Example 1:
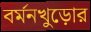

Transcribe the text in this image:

বর্মনখুড়োর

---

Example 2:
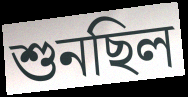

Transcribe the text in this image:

শুনছিল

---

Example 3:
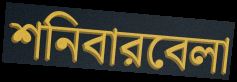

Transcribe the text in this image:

শনিবারবেলা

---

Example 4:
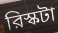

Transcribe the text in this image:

রিস্কটা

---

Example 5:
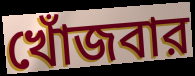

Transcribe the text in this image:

খোঁজবার